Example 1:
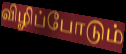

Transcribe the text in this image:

விழிப்போடும்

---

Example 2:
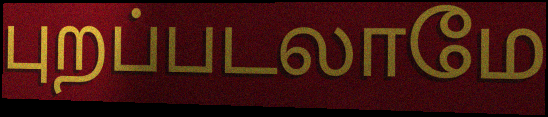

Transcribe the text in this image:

புறப்படலாமே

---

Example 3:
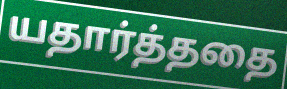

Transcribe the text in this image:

யதார்த்ததை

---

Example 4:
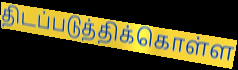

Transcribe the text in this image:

திடப்படுத்திக்கொள்ள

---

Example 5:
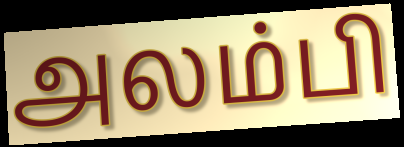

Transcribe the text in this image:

அலம்பி